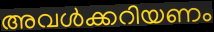
അവൾക്കറിയണം